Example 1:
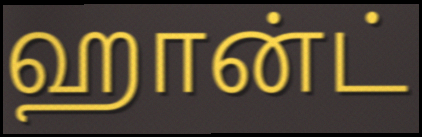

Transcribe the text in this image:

ஹான்ட்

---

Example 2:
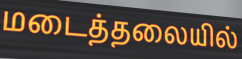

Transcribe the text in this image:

மடைத்தலையில்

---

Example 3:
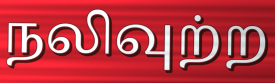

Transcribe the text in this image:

நலிவுற்ற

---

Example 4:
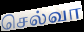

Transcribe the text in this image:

செல்வா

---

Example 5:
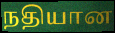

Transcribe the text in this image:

நதியான